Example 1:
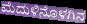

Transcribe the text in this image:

ಮೆದುಳಿನೊಳಗಿನ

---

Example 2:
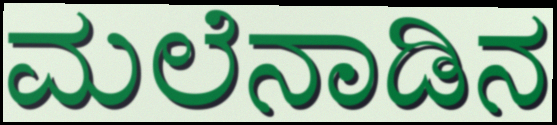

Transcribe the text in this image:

ಮಲೆನಾಡಿನ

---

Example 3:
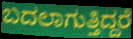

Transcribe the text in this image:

ಬದಲಾಗುತ್ತಿದ್ದರೆ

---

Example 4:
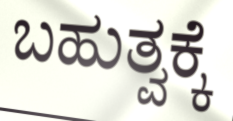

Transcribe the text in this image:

ಬಹುತ್ವಕ್ಕೆ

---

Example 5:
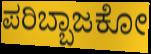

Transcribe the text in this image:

ಪರಿಬ್ಬಾಜಕೋ